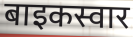
बाइकस्वार